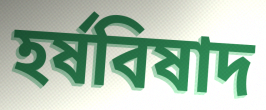
হর্ষবিষাদ